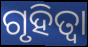
ଗୃହିତ୍ବା